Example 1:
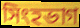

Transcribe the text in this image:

সিংহভাগ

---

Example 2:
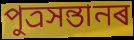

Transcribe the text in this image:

পুত্ৰসন্তানৰ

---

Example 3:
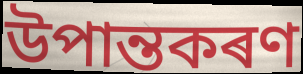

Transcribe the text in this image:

উপান্তকৰণ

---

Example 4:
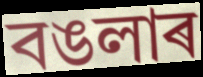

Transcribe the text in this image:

বঙলাৰ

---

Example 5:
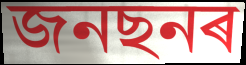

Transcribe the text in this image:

জনছনৰ